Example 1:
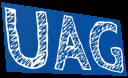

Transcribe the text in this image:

UAG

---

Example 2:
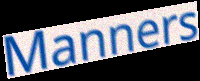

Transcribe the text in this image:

Manners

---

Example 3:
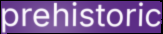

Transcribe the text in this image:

prehistoric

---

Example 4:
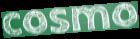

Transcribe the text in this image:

cosmo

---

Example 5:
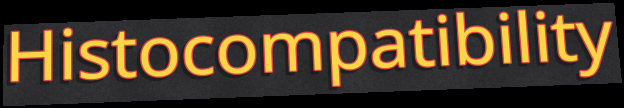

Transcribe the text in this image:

Histocompatibility